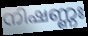
നിഷണ്ണഃ